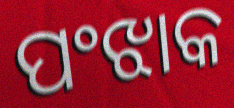
ପଂଝାକ